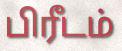
பிரீடம்